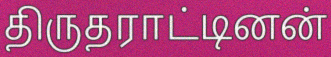
திருதராட்டினன்